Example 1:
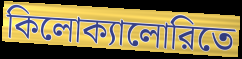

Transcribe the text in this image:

কিলোক্যালোরিতে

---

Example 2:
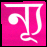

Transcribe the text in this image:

ন্যূ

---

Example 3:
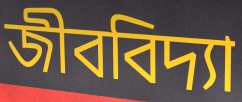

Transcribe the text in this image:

জীববিদ্যা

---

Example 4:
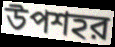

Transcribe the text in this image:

উপশহর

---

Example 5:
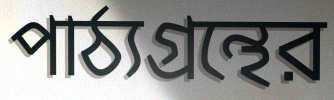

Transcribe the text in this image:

পাঠ্যগ্রন্থের